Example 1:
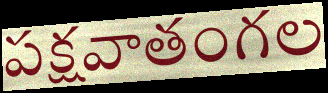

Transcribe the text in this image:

పక్షవాతంగల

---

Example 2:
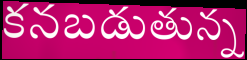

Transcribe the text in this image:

కనబడుతున్న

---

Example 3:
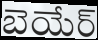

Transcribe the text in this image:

బెయేర్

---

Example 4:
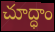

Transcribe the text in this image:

చూద్ధాం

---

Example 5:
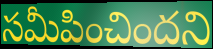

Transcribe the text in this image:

సమీపించిందని